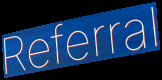
Referral